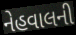
નેહવાલની